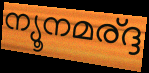
ന്യൂനമര്ദ്ദ